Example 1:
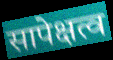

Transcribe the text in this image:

सापेक्षत्व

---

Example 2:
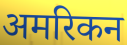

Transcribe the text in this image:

अमरिकन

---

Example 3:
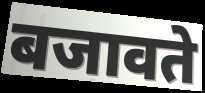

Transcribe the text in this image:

बजावते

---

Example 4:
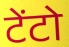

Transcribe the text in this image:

टेंटो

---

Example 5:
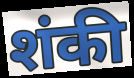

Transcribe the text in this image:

शंकी